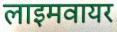
लाइमवायर